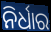
ନିର୍ଧାର